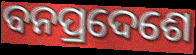
ବନପ୍ରଦେଶେ